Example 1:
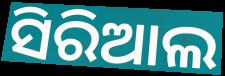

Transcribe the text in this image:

ସିରିଆଲ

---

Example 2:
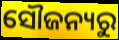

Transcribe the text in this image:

ସୌଜନ୍ୟରୁ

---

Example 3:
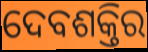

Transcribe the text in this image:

ଦେବଶକ୍ତିର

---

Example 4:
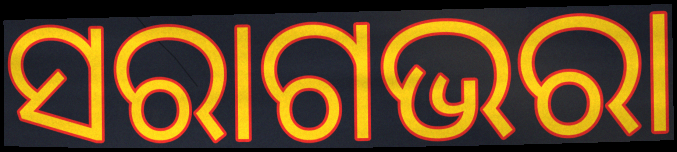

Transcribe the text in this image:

ସରାଗଭରା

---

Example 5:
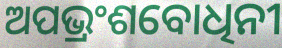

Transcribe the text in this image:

ଅପଭ୍ରଂଶବୋଧିନୀ